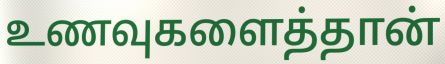
உணவுகளைத்தான்